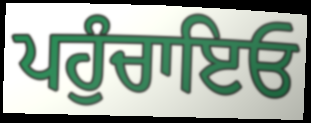
ਪਹੁੰਚਾਇਓ